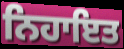
ਨਿਹਾਇਤ